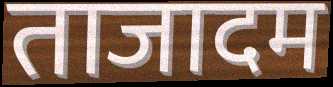
ताजादम